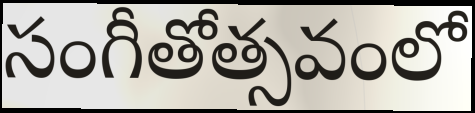
సంగీతోత్సవంలో